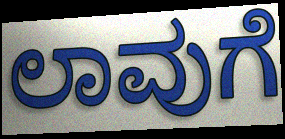
ಲಾವುಗೆ